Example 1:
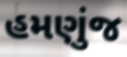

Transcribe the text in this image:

હમણુંજ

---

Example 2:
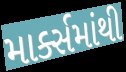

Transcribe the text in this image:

માર્ક્સમાંથી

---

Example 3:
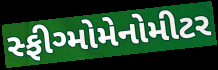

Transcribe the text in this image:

સ્ફીગ્મોમેનોમીટર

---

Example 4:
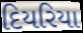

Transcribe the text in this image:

દિયરિયા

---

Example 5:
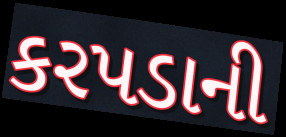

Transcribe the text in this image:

કરપડાની